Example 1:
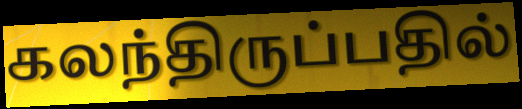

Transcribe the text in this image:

கலந்திருப்பதில்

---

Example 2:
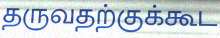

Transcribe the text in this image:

தருவதற்குக்கூட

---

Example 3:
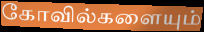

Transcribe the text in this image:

கோவில்களையும்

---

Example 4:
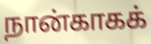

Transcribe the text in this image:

நான்காகக்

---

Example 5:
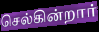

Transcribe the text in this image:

செல்கின்றார்